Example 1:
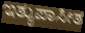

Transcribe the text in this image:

ಇತ್ಯುಪಾಸೀತ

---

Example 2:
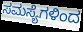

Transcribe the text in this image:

ಸಮಸ್ಯೆಗಳಿಂದ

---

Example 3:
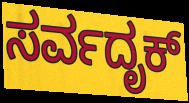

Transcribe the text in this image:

ಸರ್ವದೃಕ್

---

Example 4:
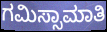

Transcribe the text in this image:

ಗಮಿಸ್ಸಾಮಾತಿ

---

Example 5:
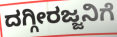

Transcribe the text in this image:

ದಗ್ಗೀರಜ್ಜನಿಗೆ